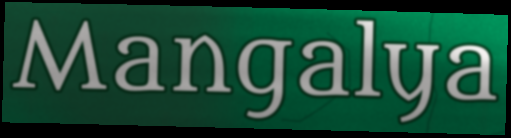
Mangalya